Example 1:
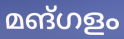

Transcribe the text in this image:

മങ്ഗളം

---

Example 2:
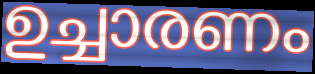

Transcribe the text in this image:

ഉച്ചാരണം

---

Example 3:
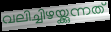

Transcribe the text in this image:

വലിച്ചിഴയ്ക്കുന്നത്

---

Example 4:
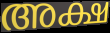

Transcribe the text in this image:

അക്ഷ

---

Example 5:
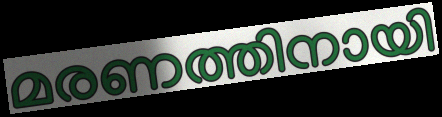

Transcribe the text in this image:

മരണത്തിനായി